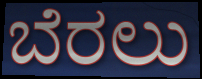
ಬೆರಲು